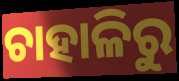
ଚାହାଳିରୁ